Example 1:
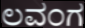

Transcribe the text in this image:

ಲವಂಗ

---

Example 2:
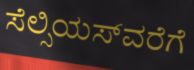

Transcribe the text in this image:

ಸೆಲ್ಸಿಯಸ್‍ವರೆಗೆ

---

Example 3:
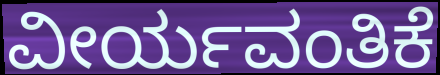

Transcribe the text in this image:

ವೀರ್ಯವಂತಿಕೆ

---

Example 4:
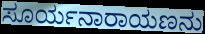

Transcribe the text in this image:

ಸೂರ್ಯನಾರಾಯಣನು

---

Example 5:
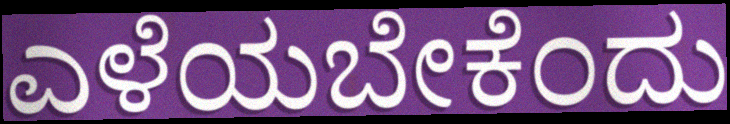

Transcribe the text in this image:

ಎಳೆಯಬೇಕೆಂದು